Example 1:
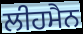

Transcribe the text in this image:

ਲੀਹਮੈਨ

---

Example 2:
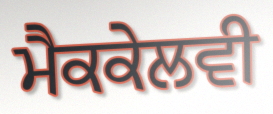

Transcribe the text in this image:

ਮੈਕਕੇਲਵੀ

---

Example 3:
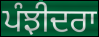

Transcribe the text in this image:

ਪੰਝੀਦਰਾ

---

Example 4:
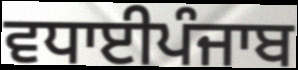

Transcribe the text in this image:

ਵਧਾਈਪੰਜਾਬ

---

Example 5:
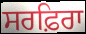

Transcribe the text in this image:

ਸਰਫ਼ਿਰਾ